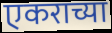
एकराच्या